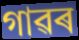
গাৱৰ